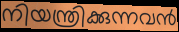
നിയന്ത്രിക്കുന്നവൻ